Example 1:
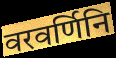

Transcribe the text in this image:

वरवर्णिनि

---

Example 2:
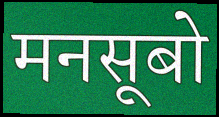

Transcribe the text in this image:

मनसूबो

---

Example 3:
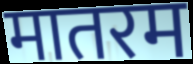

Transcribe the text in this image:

मातरम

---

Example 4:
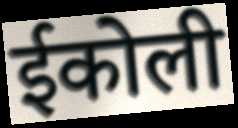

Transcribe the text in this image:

ईकोली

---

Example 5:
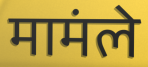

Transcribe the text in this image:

मामंले